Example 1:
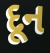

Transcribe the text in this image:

દૂન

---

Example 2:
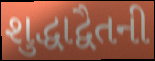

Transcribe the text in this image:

શુદ્ધાદ્વૈતની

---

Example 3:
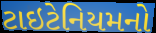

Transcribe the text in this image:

ટાઇટેનિયમનો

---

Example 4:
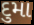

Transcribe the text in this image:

દુમા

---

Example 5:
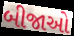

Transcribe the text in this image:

બીજાઓ